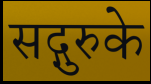
सद्गुरुके